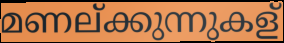
മണല്ക്കുന്നുകള്